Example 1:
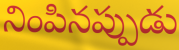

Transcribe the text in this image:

నింపినప్పుడు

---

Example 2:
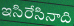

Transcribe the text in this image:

ఇసిరేసినాది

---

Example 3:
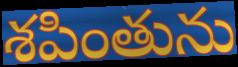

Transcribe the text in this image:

శపింతును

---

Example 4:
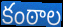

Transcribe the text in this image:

కంఠాల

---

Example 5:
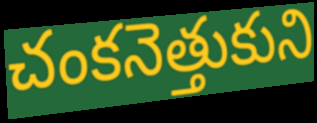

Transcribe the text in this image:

చంకనెత్తుకుని